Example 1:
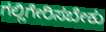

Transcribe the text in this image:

ಗಲ್ಲಿಗೇರಿಸಬೇಕು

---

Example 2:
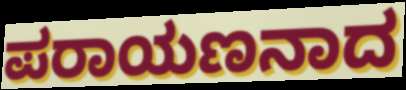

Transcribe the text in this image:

ಪರಾಯಣನಾದ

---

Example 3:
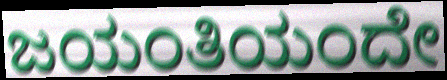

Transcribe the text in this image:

ಜಯಂತಿಯಂದೇ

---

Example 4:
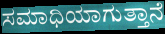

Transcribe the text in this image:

ಸಮಾಧಿಯಾಗುತ್ತಾನೆ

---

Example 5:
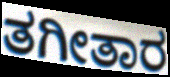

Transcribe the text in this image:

ತಗೀತಾರ